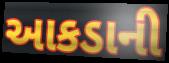
આકડાની